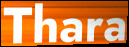
Thara